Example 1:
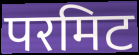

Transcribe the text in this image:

परमिट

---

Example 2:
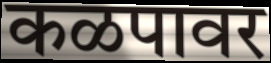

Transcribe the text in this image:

कळपावर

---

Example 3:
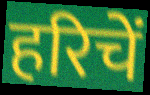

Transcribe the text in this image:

हरिचें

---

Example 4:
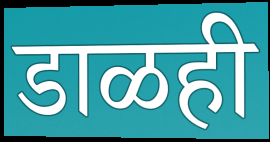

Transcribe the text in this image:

डाळही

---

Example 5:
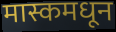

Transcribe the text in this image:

मास्कमधून